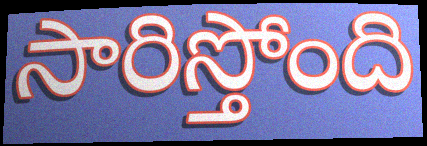
సారిస్తోంది